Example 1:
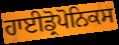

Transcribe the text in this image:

ਹਾਈਡ੍ਰੋਪੋਨਿਕਸ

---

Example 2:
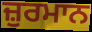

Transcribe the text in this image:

ਜ਼ੁਰਮਾਨ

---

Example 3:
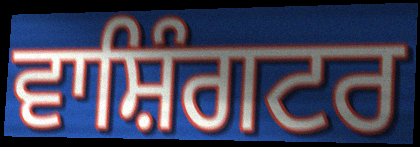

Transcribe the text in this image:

ਵਾਸ਼ਿੰਗਟਰ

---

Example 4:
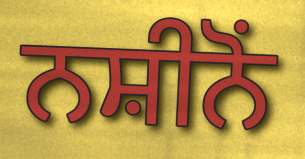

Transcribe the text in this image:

ਨਸ਼ੀਨੋਂ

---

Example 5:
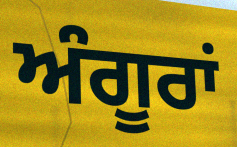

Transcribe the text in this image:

ਅੰਗੂਰਾਂ